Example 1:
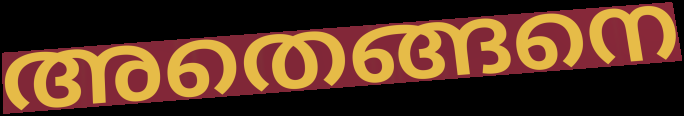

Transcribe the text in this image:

അതെങ്ങനെ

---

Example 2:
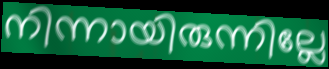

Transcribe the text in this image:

നിന്നായിരുന്നില്ലേ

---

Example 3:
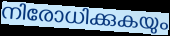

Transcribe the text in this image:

നിരോധിക്കുകയും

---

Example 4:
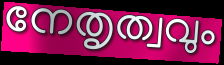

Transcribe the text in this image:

നേതൃത്വവും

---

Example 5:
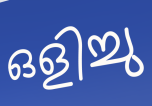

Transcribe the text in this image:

ഒളിച്ചു